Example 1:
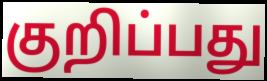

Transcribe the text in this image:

குறிப்பது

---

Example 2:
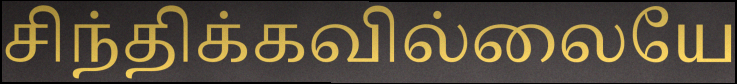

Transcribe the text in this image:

சிந்திக்கவில்லையே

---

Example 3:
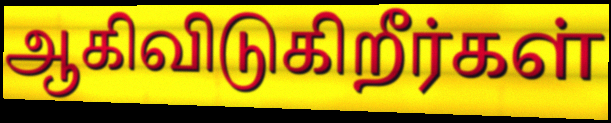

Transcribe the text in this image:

ஆகிவிடுகிறீர்கள்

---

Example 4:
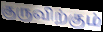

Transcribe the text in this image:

குருவிற்கும்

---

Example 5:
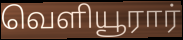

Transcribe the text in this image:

வெளியூரார்